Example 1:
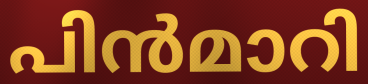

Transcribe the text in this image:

പിൻമാറി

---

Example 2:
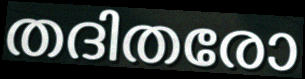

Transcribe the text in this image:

തദിതരോ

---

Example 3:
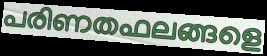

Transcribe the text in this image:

പരിണതഫലങ്ങളെ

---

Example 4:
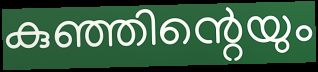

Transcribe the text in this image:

കുഞ്ഞിന്റെയും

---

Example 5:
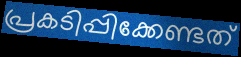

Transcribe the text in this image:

പ്രകടിപ്പിക്കേണ്ടത്